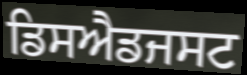
ਡਿਸਐਡਜਸਟ